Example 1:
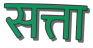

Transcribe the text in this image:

सत्ता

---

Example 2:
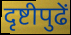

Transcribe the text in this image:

दृष्टीपुढें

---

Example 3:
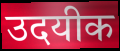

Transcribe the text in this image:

उदयीक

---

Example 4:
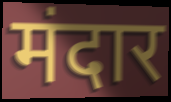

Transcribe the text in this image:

मंदार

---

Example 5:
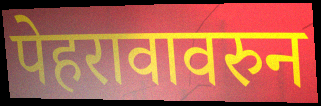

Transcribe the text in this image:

पेहरावावरुन